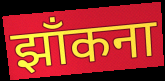
झाँकना